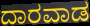
ದಾರವಾಡ